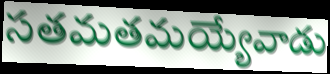
సతమతమయ్యేవాడు